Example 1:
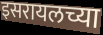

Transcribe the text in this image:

इसरायलच्या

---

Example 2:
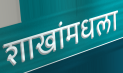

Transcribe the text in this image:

शाखांमधला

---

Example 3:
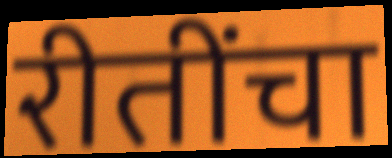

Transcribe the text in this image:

रीतींचा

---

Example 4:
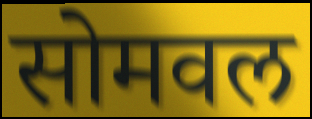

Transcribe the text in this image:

सोमवल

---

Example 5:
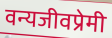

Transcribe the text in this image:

वन्यजीवप्रेमी